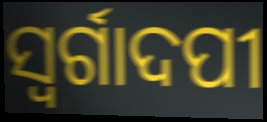
ସ୍ବର୍ଗାଦପୀ